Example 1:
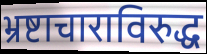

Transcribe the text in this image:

भ्रष्टाचाराविरुद्ध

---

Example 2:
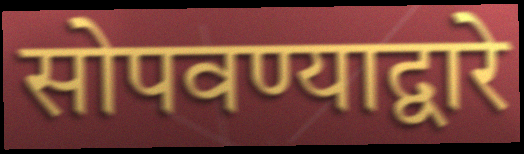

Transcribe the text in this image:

सोपवण्याद्वारे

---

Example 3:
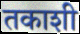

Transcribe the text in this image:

तकाशी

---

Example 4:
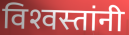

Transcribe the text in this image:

विश्वस्तांनी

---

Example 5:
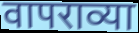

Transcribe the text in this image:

वापराव्या